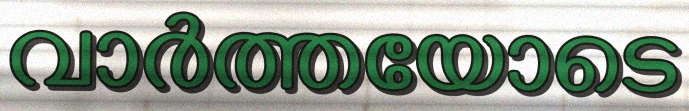
വാർത്തയോടെ